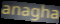
anagha